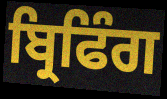
ਬ੍ਰਿਫਿੰਗ